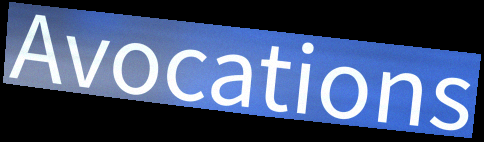
Avocations